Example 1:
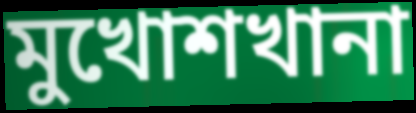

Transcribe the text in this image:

মুখোশখানা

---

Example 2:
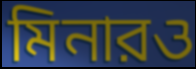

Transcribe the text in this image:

মিনারও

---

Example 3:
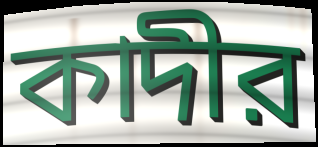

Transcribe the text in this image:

কাদীর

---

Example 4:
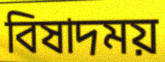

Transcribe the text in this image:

বিষাদময়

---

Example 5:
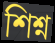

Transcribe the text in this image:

শিশ্ন